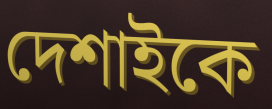
দেশাইকে